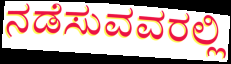
ನಡೆಸುವವರಲ್ಲಿ